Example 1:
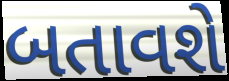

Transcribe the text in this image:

બતાવશે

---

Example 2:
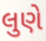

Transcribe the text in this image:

લુણે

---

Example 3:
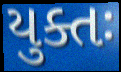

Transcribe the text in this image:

યુક્તઃ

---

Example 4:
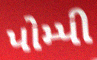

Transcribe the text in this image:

પોમ્પી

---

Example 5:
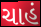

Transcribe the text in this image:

ચાહં